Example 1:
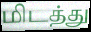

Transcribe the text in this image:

மிடத்து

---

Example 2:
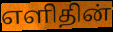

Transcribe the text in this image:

எளிதின்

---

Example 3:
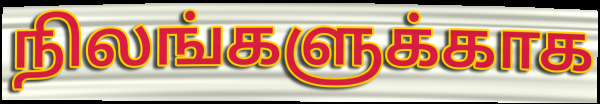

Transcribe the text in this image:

நிலங்களுக்காக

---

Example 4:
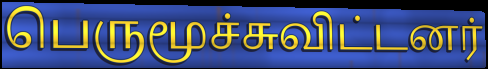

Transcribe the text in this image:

பெருமூச்சுவிட்டனர்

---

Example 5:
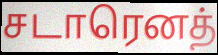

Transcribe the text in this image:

சடாரெனத்